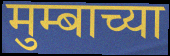
मुम्बाच्या